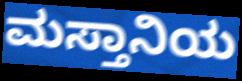
ಮಸ್ತಾನಿಯ